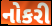
નોકરી